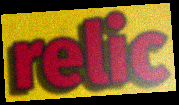
relic